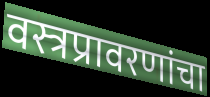
वस्त्रप्रावरणांचा